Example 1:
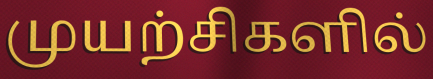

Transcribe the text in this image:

முயற்சிகளில்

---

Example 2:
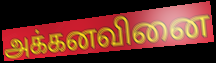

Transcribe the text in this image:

அக்கனவினை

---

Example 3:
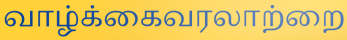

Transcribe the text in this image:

வாழ்க்கைவரலாற்றை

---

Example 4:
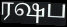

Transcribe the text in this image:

ரஷப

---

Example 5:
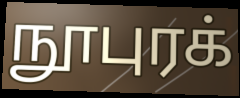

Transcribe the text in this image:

நூபுரக்